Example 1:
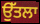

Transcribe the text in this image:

ਉੱਤਲਾ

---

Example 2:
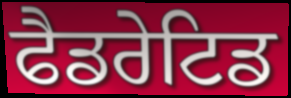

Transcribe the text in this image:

ਫੈਡਰੇਟਿਡ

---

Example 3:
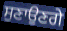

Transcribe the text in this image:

ਸੁਣਾਉਣਗੇ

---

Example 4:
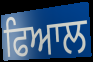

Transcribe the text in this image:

ਫਿਆਲ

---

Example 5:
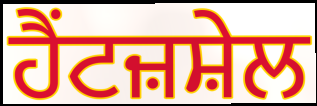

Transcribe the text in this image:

ਹੈਂਟਜ਼ਸ਼ੇਲ